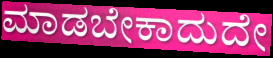
ಮಾಡಬೇಕಾದುದೇ